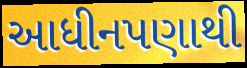
આધીનપણાથી